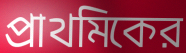
প্রাথমিকের